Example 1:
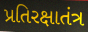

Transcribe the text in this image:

પ્રતિરક્ષાતંત્ર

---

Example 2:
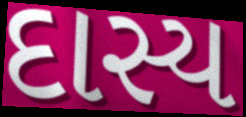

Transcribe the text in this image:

દાસ્ય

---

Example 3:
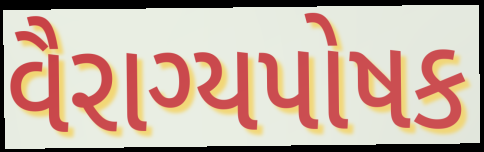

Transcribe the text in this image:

વૈરાગ્યપોષક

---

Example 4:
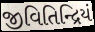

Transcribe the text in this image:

જીવિતિન્દ્રિયં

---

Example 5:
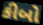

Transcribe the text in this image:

કીબો